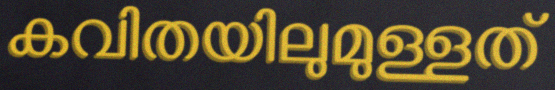
കവിതയിലുമുള്ളത്